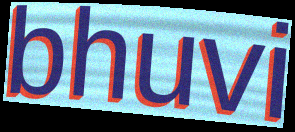
bhuvi